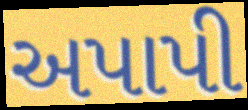
અપાપી